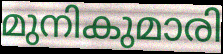
മുനികുമാരി